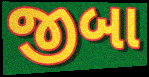
જીબા